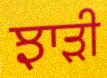
ਝਾੜੀ